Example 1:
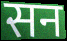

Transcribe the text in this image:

सन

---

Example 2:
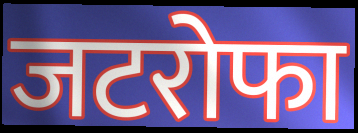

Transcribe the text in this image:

जटरोफा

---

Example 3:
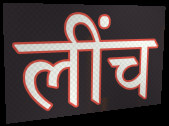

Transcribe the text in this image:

लींच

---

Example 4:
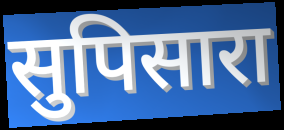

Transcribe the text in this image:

सुपिसारा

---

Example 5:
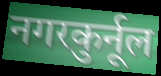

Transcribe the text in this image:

नगरकुर्नूल